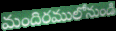
మందిరములోనుండి